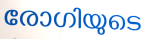
രോഗിയുടെ